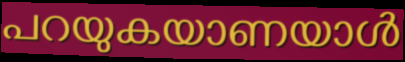
പറയുകയാണയാൾ